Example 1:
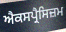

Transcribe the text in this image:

ਐਕਸਪ੍ਰੈਸਿਜ਼ਮ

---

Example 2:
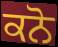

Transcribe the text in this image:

ਕਨੋ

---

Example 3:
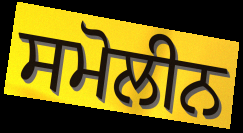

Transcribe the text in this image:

ਸਮੋਲੀਨ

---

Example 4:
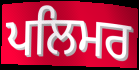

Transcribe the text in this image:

ਪਲਿਮਰ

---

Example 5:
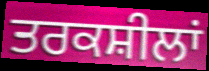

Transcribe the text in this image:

ਤਰਕਸ਼ੀਲਾਂ